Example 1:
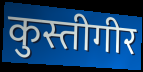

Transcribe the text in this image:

कुस्तीगीर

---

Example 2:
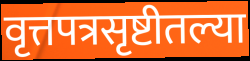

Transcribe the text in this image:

वृत्तपत्रसृष्टीतल्या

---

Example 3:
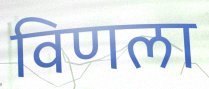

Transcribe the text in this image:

विणला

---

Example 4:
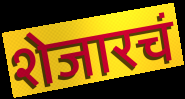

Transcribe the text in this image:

शेजारचं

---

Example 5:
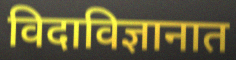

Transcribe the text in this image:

विदाविज्ञानात